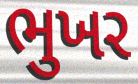
ભુખર